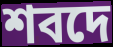
শবদে